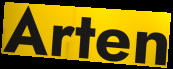
Arten